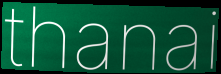
thanai